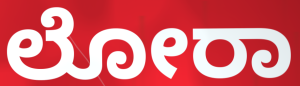
ಲೋರಾ